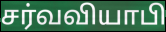
சர்வவியாபி